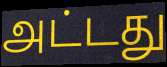
அட்டது